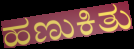
ಹಣುಕಿತು